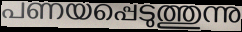
പണയപ്പെടുത്തുന്നു